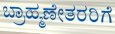
ಬ್ರಾಹ್ಮಣೇತರರಿಗೆ